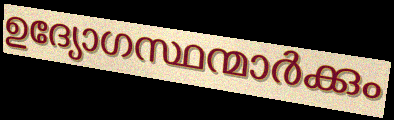
ഉദ്യോഗസ്ഥന്മാർക്കും